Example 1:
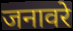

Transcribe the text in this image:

जनावरे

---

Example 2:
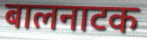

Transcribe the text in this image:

बालनाटक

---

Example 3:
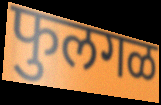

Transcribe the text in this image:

फुलगळ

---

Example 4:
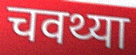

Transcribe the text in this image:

चवथ्या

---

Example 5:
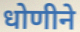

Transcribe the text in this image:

धोणीने